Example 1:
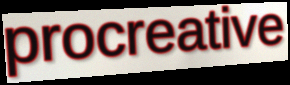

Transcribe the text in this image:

procreative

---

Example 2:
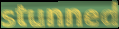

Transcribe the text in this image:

stunned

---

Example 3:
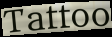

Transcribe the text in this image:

Tattoo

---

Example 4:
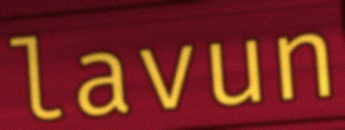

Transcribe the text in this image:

lavun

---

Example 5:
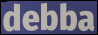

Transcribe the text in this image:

debba